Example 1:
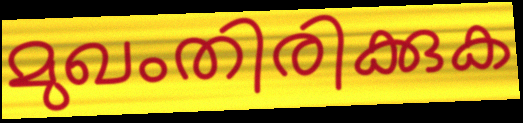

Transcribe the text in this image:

മുഖംതിരിക്കുക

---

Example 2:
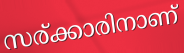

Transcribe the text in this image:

സര്ക്കാരിനാണ്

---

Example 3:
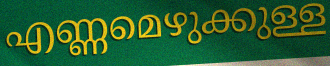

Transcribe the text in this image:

എണ്ണമെഴുക്കുള്ള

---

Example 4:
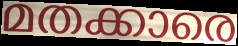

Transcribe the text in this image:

മതക്കാരെ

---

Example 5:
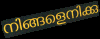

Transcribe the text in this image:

നിങ്ങളെനിക്കു